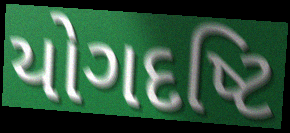
યોગદષ્ટિ